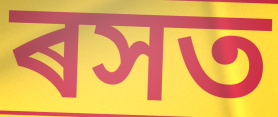
ৰসত